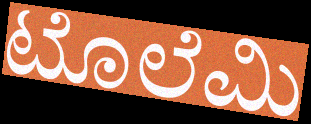
ಟೊಲೆಮಿ